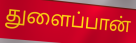
துளைப்பான்